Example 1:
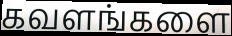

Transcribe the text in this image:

கவளங்களை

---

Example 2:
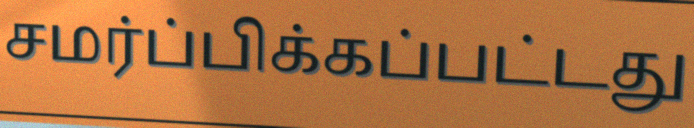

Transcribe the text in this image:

சமர்ப்பிக்கப்பட்டது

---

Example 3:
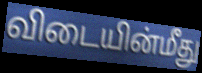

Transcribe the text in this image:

விடையின்மீது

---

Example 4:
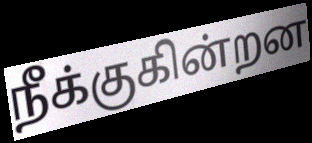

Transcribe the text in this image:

நீக்குகின்றன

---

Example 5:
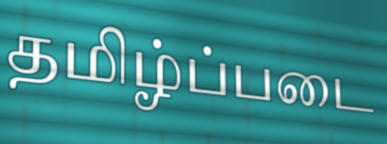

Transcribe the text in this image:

தமிழ்ப்படை